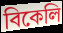
বিকেলি